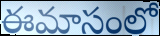
ఈమాసంలో